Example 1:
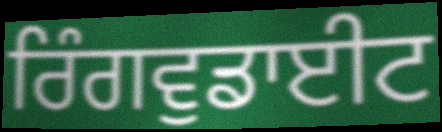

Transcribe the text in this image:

ਰਿੰਗਵੁਡਾਈਟ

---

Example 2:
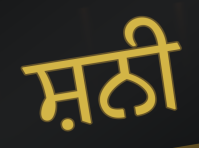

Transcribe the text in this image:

ਸ਼ਨੀ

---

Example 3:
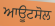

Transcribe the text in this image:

ਆਊਟਸੋਲ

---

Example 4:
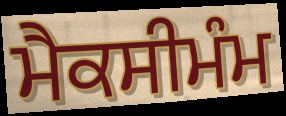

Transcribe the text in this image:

ਮੈਕਸੀਮੰਮ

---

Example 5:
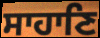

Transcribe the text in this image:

ਸਾਹਾਣਿ